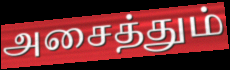
அசைத்தும்